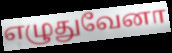
எழுதுவேனா